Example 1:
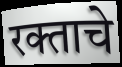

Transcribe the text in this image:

रक्ताचे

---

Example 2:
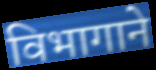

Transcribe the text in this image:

विभागाने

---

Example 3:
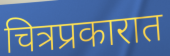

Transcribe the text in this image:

चित्रप्रकारात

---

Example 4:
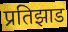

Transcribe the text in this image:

प्रतिझाड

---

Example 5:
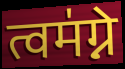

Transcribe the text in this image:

त्वम॑ग्ने